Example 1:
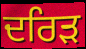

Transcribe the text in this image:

ਦਰਿੜ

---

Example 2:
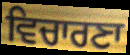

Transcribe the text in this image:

ਵਿਚਾਰਣਾ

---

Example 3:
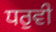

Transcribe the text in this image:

ਧਰੁਵੀ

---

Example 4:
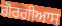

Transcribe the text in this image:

ਗੋਰਗੀਆਸ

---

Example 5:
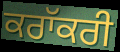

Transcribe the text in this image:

ਕਰਾੱਕਰੀ